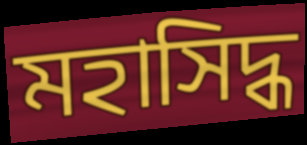
মহাসিদ্ধ